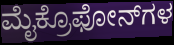
ಮೈಕ್ರೊಫೋನ್‌ಗಳ